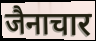
जैनाचार